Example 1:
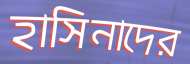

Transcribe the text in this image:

হাসিনাদের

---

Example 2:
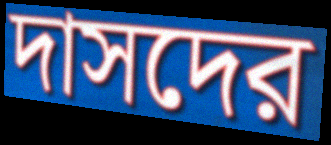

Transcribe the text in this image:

দাসদের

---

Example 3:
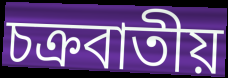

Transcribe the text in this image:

চক্রবাতীয়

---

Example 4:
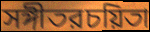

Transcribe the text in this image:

সঙ্গীতরচয়িতা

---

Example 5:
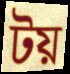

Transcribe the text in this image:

টয়